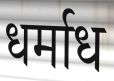
धर्माध